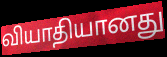
வியாதியானது